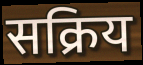
सक्रिय